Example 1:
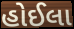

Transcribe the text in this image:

હોઈલા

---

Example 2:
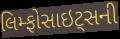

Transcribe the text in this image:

લિમ્ફોસાઇટ્સની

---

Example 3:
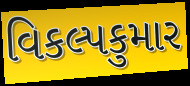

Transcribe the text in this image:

વિકલ્પકુમાર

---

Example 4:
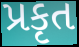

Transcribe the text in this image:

પ્રકૃત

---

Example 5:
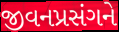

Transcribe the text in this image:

જીવનપ્રસંગને